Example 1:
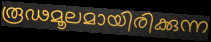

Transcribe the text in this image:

രൂഢമൂലമായിരിക്കുന്ന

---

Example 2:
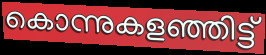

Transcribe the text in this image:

കൊന്നുകളഞ്ഞിട്ട്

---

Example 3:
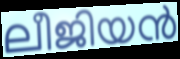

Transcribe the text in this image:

ലീജിയൻ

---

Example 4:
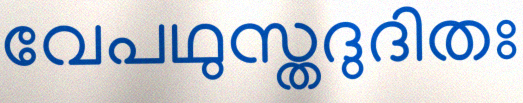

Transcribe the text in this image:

വേപഥുസ്തദുദിതഃ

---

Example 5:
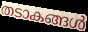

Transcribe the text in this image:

തടാകങ്ങൾ